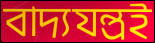
বাদ্যযন্ত্ৰই